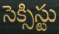
సెక్సిస్టు